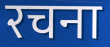
रचना